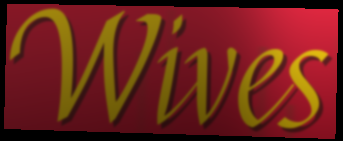
Wives